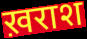
ख़राश